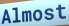
Almost